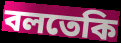
বলতেকি